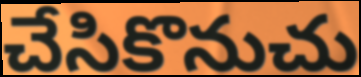
చేసికొనుచు